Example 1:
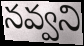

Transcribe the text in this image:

నవ్వని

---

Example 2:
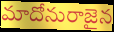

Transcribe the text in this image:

మాదోనురాజైన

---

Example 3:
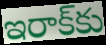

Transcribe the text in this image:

ఇరాక్‌కు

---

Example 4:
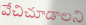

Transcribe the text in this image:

వేచిచూడాలని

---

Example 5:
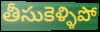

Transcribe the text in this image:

తీసుకెళ్ళిపో